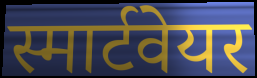
स्मार्टवेयर